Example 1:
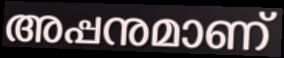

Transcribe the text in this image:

അപ്പനുമാണ്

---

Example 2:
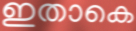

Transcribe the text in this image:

ഇതാകെ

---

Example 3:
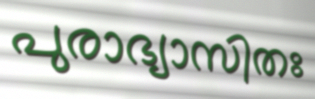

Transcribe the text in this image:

പുരാഭ്യാസിതഃ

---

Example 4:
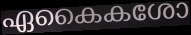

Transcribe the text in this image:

ഏകൈകശോ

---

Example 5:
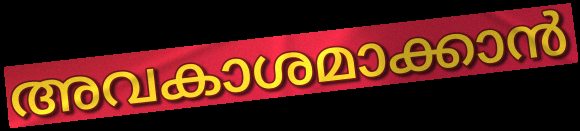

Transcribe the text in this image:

അവകാശമാക്കാൻ